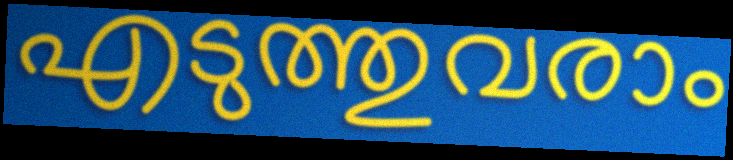
എടുത്തുവരാം